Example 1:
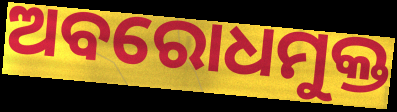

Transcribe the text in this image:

ଅବରୋଧମୁକ୍ତ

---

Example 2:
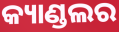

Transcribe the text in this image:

କ୍ୟାଣ୍ଡଲର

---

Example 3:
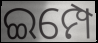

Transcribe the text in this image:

ଇମ୍ପେ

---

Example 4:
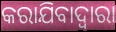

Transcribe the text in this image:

କରାଯିବାଦ୍ୱାରା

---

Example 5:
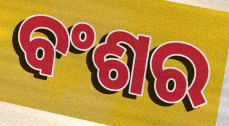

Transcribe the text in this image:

ବଂଶର